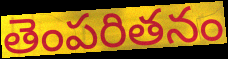
తెంపరితనం